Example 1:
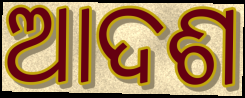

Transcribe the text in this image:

ଆଦଶ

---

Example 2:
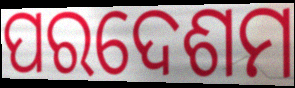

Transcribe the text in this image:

ପରଦେଶମ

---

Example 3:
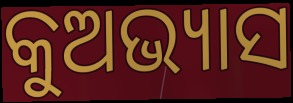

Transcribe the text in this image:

କୁଅଭ୍ୟାସ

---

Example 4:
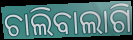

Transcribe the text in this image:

ଚାଲିବାଲାଗି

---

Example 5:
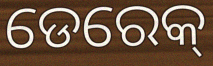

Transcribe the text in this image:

ଡେରେକ୍